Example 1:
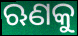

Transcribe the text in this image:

ଋଣକୁ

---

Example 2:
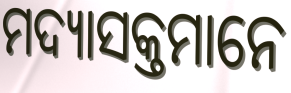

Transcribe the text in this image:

ମଦ୍ୟାସକ୍ତମାନେ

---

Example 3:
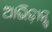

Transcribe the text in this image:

ଆଭିଡ଼ାନ୍ସ୍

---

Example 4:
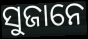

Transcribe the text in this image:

ସୁଜାନେ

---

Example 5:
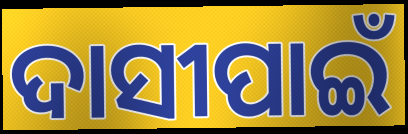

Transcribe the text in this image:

ଦାସୀପାଇଁ